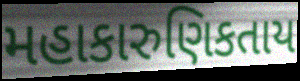
મહાકારુણિકતાય